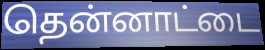
தென்னாட்டை